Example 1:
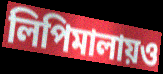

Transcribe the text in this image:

লিপিমালায়ও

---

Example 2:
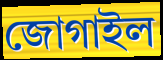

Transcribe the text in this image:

জোগাইল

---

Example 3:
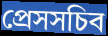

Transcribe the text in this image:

প্রেসসচিব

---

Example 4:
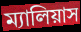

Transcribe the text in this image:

ম্যালিয়াস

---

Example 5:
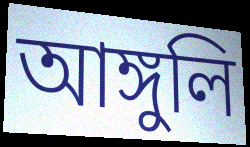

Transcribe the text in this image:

আঙ্গুলি